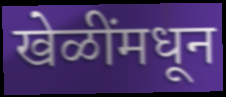
खेळींमधून